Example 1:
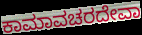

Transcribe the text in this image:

ಕಾಮಾವಚರದೇವಾ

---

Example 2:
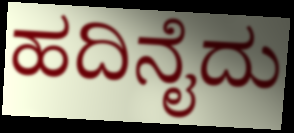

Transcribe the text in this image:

ಹದಿನೈದು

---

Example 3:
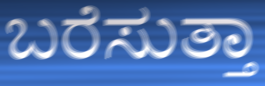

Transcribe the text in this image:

ಬರೆಸುತ್ತಾ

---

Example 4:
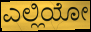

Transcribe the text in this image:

ಎಲ್ಲಿಯೋ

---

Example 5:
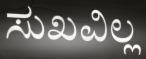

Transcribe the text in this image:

ಸುಖವಿಲ್ಲ